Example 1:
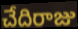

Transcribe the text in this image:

చేదిరాజు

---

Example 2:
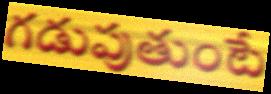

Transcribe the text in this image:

గడుపుతుంటే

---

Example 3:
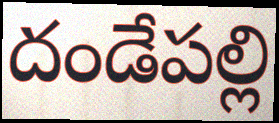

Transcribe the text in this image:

దండేపల్లి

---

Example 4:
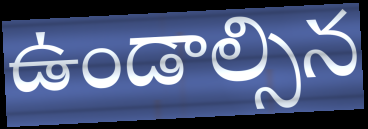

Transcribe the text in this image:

ఉండాల్సిన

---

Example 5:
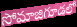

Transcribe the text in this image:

సోమాజిగూడలో